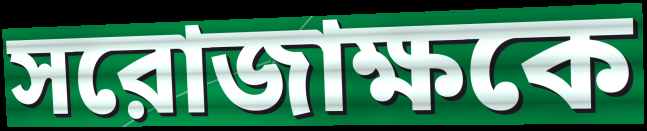
সরোজাক্ষকে